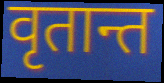
वृतान्त